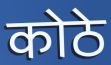
कोठे